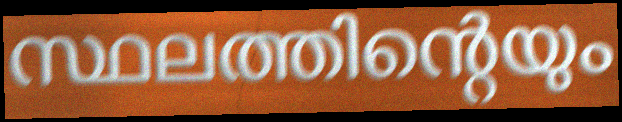
സ്ഥലത്തിന്റെയും